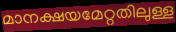
മാനക്ഷയമേറ്റതിലുള്ള